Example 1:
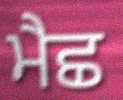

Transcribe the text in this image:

ਮੈਛ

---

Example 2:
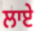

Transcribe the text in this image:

ਲਾਏ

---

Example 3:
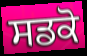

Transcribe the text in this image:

ਸਡਕੋ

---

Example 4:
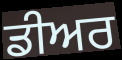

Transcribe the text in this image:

ਡੀਅਰ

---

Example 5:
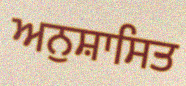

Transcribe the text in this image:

ਅਨੁਸ਼ਾਸਿਤ